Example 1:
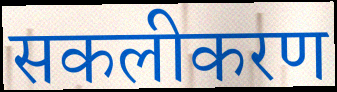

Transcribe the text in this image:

सकलीकरण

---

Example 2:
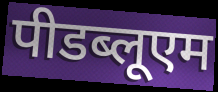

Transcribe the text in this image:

पीडब्लूएम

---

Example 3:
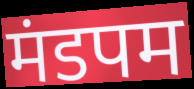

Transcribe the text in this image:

मंडपम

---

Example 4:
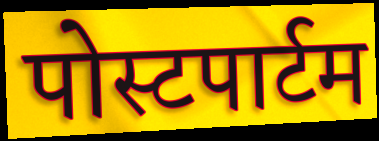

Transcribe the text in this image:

पोस्टपार्टम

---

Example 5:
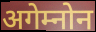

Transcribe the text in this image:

अगेम्नोन